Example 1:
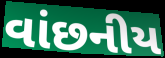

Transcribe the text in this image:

વાંછનીય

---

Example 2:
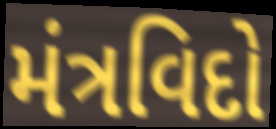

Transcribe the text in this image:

મંત્રવિદો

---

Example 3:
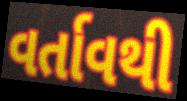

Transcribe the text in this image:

વર્તાવથી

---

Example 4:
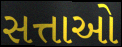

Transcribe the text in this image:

સત્તાઓ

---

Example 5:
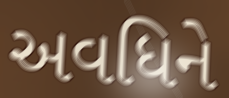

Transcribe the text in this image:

અવધિને